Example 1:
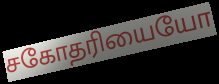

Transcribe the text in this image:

சகோதரியையோ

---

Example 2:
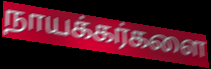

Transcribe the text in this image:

நாயக்கர்களை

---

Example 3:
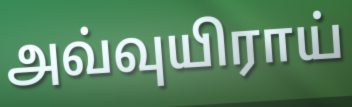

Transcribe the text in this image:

அவ்வுயிராய்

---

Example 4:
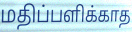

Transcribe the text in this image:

மதிப்பளிக்காத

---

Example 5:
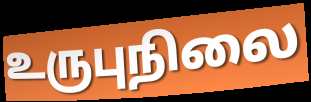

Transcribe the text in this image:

உருபுநிலை